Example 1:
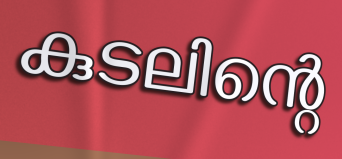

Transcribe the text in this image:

കുടലിന്റെ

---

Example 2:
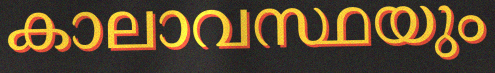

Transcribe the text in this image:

കാലാവസ്ഥയും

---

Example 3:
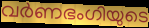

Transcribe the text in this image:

വർണഭംഗിയുടെ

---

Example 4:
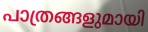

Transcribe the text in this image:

പാത്രങ്ങളുമായി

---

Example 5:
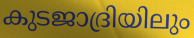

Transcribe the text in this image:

കുടജാദ്രിയിലും